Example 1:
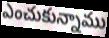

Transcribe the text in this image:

ఎంచుకున్నాము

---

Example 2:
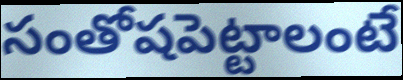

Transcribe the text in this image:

సంతోషపెట్టాలంటే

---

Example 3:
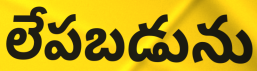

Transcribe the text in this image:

లేపబడును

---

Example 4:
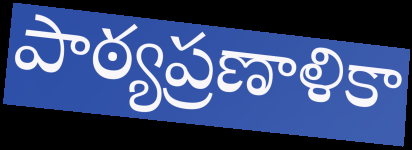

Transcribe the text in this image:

పాఠ్యప్రణాళికా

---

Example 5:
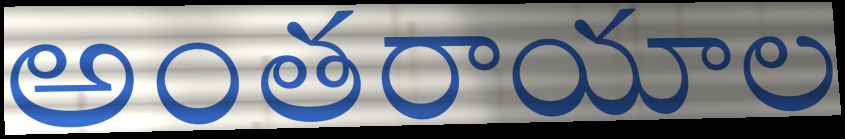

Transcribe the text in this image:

అంతరాయాల